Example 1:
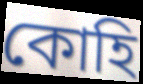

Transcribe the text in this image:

কোহি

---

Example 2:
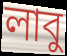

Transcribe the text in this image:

লাবু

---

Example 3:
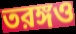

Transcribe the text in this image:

তরঙ্গও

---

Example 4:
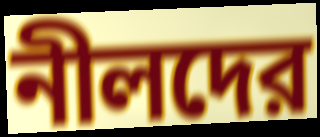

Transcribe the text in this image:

নীলদের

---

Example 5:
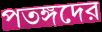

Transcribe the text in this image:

পতঙ্গদের